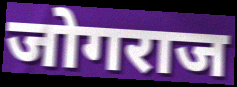
जोगराज